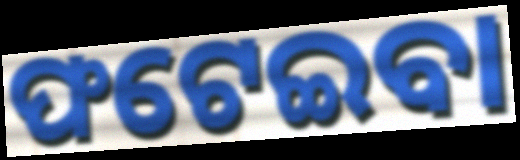
ଫଟେଇବା